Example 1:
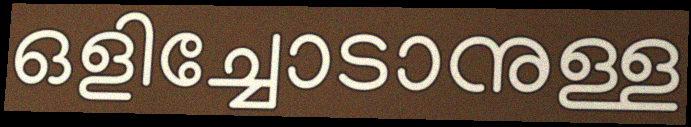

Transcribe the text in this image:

ഒളിച്ചോടാനുള്ള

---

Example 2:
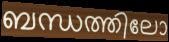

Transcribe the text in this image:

ബന്ധത്തിലോ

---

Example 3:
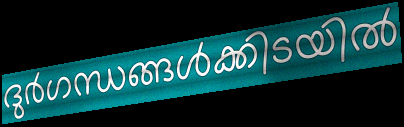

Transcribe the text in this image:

ദുർഗന്ധങ്ങൾക്കിടയിൽ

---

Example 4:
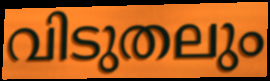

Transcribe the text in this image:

വിടുതലും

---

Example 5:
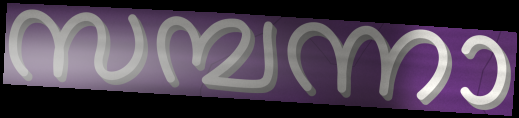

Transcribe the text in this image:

സമ്പന്നാ